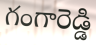
గంగారెడ్డి